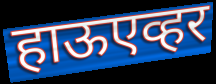
हाऊएव्हर